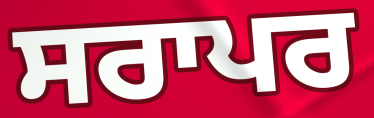
ਸਰਾਪਰ